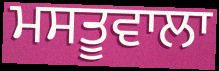
ਮਸਤੂਵਾਲਾ